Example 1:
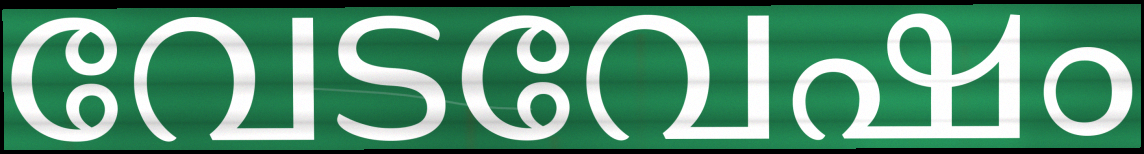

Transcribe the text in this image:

വേടവേഷം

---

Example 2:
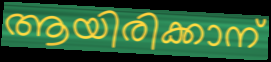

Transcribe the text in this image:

ആയിരിക്കാന്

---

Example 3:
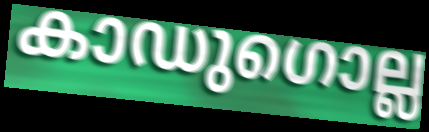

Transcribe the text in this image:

കാഡുഗൊല്ല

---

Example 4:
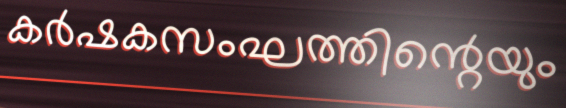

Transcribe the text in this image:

കർഷകസംഘത്തിന്റെയും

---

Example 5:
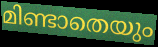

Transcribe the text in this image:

മിണ്ടാതെയും